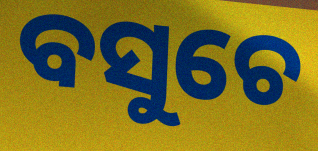
ବସୁଚେ